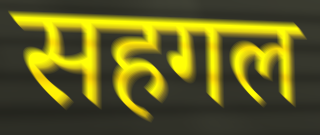
सहगल